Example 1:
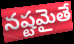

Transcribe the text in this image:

నష్టమైతే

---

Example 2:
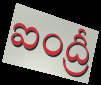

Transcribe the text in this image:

ఐంద్రీ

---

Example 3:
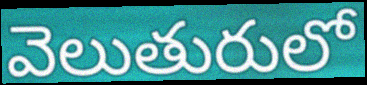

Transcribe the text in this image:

వెలుతురులో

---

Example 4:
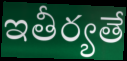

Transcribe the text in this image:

ఇతీర్యతే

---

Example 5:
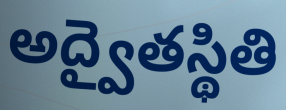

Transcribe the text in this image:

అద్వైతస్థితి